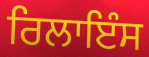
ਰਿਲਾਇੰਸ